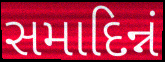
સમાદિન્નં